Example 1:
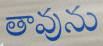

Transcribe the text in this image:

తావును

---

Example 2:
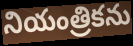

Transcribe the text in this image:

నియంత్రికను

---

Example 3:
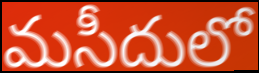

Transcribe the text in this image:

మసీదులో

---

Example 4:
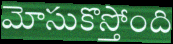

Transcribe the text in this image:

మోసుకొస్తోంది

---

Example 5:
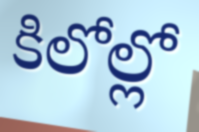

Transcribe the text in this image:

కిలోల్లో